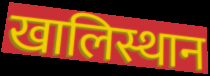
खालिस्थान